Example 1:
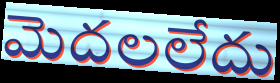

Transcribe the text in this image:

మెదలలేదు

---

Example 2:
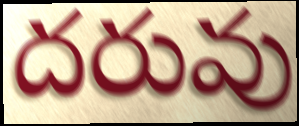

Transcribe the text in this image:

దరువు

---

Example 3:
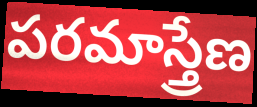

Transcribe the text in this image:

పరమాస్త్రేణ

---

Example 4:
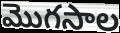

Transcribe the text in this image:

మొగసాల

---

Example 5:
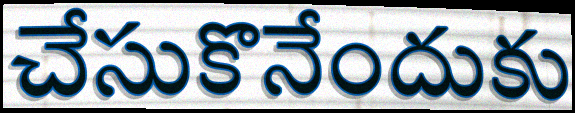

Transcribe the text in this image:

చేసుకొనేందుకు